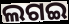
ଲଗଇ